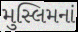
મુસ્લિમનાં